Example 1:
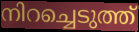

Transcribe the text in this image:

നിറച്ചെടുത്ത്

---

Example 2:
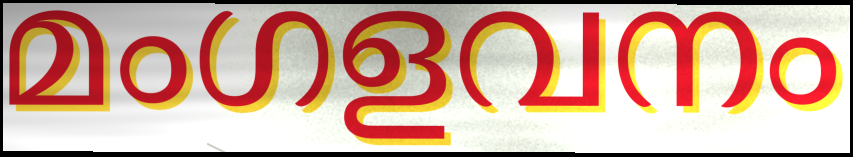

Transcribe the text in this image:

മംഗളവനം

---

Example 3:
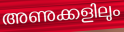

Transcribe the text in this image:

അണുക്കളിലും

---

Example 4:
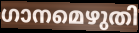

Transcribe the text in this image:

ഗാനമെഴുതി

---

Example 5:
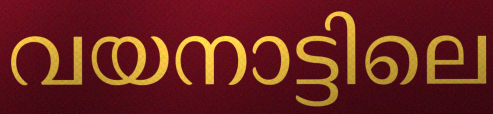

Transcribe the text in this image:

വയനാട്ടിലെ